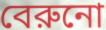
বেরুনো